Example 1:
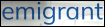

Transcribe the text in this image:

emigrant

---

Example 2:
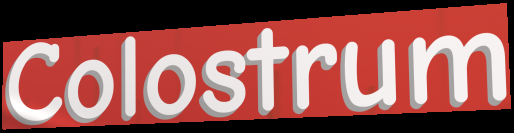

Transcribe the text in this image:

Colostrum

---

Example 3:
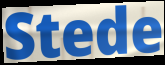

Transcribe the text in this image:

Stede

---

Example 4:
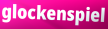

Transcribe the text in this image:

glockenspiel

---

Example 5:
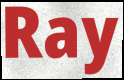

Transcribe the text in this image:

Ray